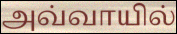
அவ்வாயில்